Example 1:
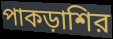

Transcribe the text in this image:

পাকড়াশির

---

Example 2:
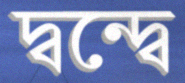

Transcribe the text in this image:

দ্বন্দ্বে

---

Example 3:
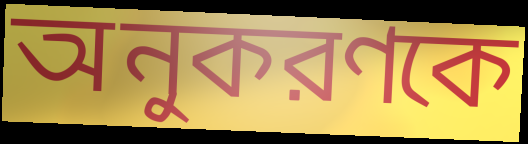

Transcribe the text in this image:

অনুকরণকে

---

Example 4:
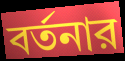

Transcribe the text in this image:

বর্তনার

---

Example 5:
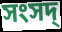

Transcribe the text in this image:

সংসদ্